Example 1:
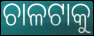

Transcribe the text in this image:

ଚାଳଟାକୁ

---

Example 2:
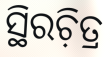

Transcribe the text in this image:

ସ୍ଥିରଚ଼ିତ୍ର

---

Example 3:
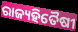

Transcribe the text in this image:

ରାଜ୍ୟହିତୈଷୀ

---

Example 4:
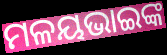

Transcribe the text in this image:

ମଳୟଭାଇଙ୍କ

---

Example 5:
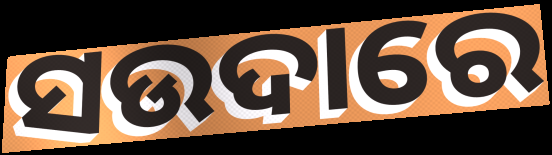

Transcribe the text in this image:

ସଉଦାରେ